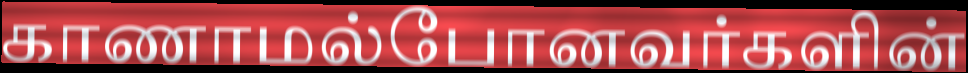
காணாமல்போனவர்களின்